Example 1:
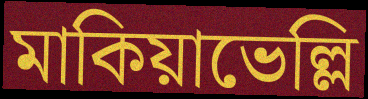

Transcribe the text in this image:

মাকিয়াভেল্লি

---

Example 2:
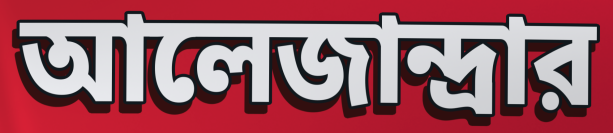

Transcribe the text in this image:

আলেজান্দ্রার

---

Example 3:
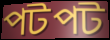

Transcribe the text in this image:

পটপট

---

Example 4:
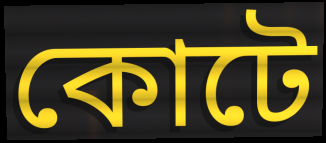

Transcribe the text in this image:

কোটে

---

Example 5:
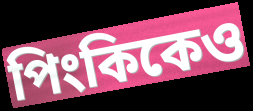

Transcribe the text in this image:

পিংকিকেও